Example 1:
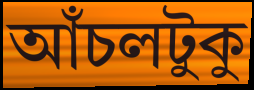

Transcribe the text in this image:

আঁচলটুকু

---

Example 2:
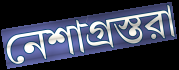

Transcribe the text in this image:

নেশাগ্রস্তরা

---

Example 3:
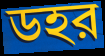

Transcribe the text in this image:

ডহর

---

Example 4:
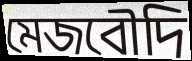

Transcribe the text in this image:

মেজবৌদি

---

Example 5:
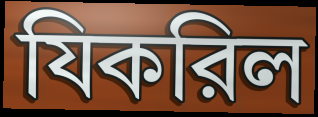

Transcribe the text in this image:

যিকরিল